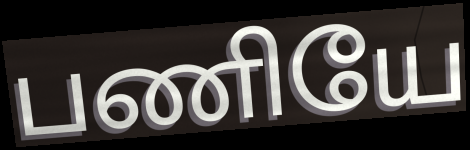
பணியே